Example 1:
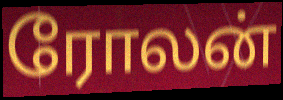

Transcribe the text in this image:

ரோலன்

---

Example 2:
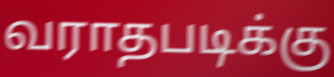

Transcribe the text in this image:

வராதபடிக்கு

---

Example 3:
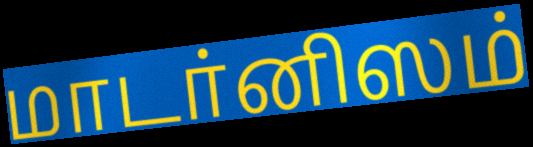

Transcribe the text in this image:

மாடர்னிஸம்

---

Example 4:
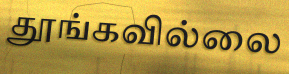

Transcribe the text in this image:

தூங்கவில்லை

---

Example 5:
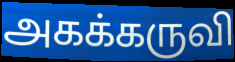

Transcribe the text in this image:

அகக்கருவி